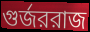
গুর্জররাজ